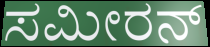
ಸಮೀರನ್